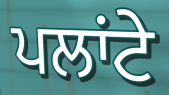
ਪਲਾਂਟੇ